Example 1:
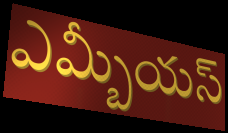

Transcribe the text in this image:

ఎమ్బీయస్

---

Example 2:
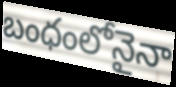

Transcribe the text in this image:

బంధంలోనైనా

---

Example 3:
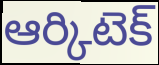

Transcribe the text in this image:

ఆర్కిటెక్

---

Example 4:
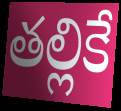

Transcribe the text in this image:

తల్లికే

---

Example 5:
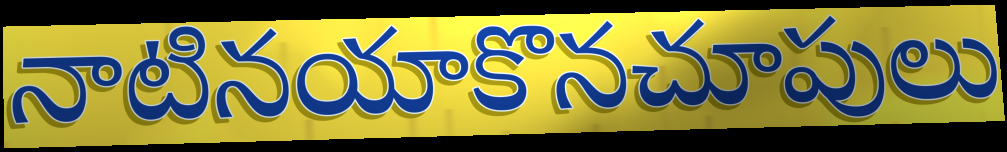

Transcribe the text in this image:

నాటినయాకొనచూపులు